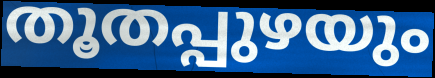
തൂതപ്പുഴയും